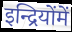
इन्द्रियोंमें